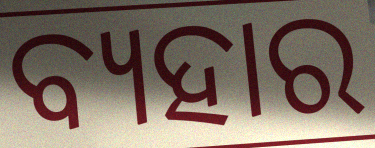
ବ୍ୟହାର